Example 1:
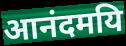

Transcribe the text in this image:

आनंदमयि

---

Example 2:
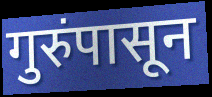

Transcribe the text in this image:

गुरुंपासून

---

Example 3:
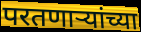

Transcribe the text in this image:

परतणाऱ्यांच्या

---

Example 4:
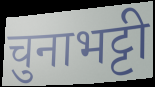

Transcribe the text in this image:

चुनाभट्टी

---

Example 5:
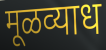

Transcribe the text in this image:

मूळव्याध